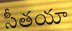
సీతయా